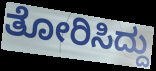
ತೋರಿಸಿದ್ದು